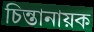
চিন্তানায়ক